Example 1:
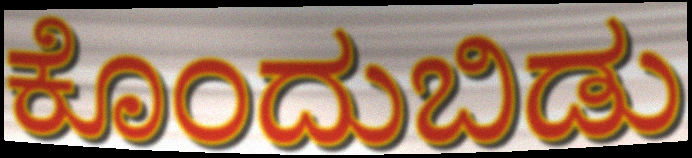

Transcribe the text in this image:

ಕೊಂದುಬಿಡು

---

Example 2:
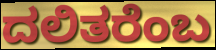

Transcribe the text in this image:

ದಲಿತರೆಂಬ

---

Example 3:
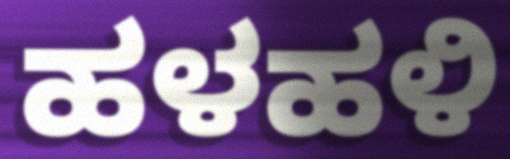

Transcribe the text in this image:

ಹಳಹಳಿ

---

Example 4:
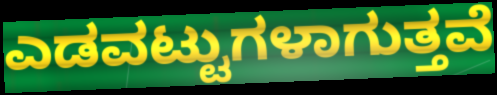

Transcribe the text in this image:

ಎಡವಟ್ಟುಗಳಾಗುತ್ತವೆ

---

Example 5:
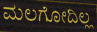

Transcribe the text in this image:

ಮಲಗೋದಿಲ್ಲ